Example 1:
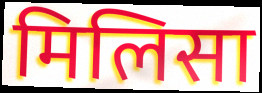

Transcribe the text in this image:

मिलिसा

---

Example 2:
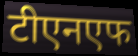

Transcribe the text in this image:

टीएनएफ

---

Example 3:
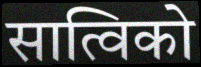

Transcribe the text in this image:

सात्विको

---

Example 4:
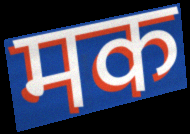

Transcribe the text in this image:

मक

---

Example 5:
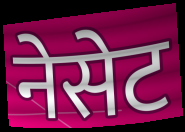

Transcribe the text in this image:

नेसेट